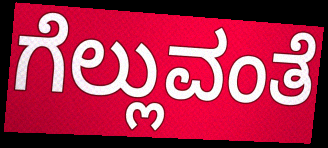
ಗೆಲ್ಲುವಂತೆ